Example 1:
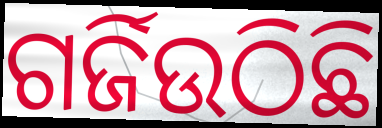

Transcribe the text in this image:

ଗର୍ଜିଉଠିଛି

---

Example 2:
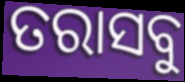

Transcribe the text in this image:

ତରାସବୁ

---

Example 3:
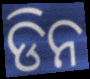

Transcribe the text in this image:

ଡିନ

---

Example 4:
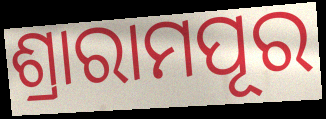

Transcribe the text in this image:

ଶ୍ରାରାମପୂର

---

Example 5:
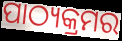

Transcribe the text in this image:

ପାଠ୍ୟକ୍ରମର